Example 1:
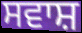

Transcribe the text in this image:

ਸਵਾਸ਼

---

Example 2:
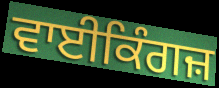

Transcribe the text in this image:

ਵਾਈਕਿੰਗਜ਼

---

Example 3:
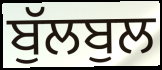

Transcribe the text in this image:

ਬੁੱਲਬੁਲ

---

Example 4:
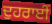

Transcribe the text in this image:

ਦੁਹਰਾਈਂ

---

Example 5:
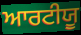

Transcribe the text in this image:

ਆਰਟੀਯੂ